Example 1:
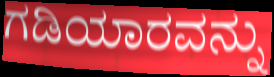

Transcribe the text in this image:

ಗಡಿಯಾರವನ್ನು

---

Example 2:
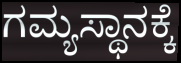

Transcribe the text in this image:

ಗಮ್ಯಸ್ಥಾನಕ್ಕೆ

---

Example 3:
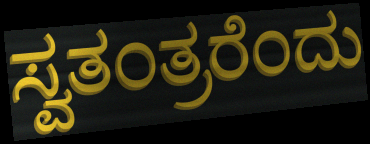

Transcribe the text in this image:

ಸ್ವತಂತ್ರರೆಂದು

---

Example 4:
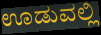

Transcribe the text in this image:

ಊಡುವಲ್ಲಿ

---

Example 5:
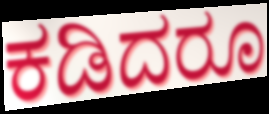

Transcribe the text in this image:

ಕಡಿದರೂ